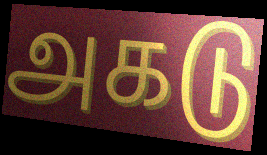
அகடு